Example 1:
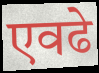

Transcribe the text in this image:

एवढे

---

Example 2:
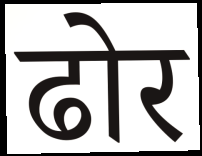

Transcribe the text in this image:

ढोर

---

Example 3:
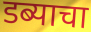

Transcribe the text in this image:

डब्याचा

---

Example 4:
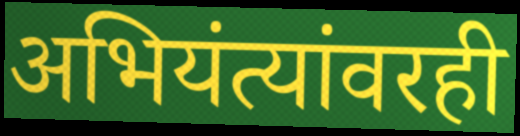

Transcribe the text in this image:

अभियंत्यांवरही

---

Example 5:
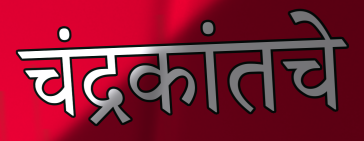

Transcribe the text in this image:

चंद्रकांतचे